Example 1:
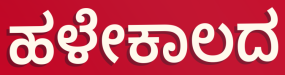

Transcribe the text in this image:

ಹಳೇಕಾಲದ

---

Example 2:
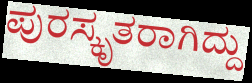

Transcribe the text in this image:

ಪುರಸ್ಕೃತರಾಗಿದ್ದು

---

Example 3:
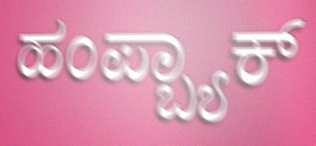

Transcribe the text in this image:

ಹಂಪ್ಬ್ಯಾಕ್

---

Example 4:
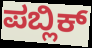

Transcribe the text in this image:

ಪಬ್ಲಿಕ್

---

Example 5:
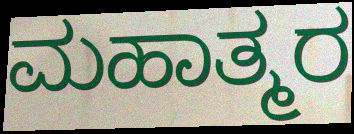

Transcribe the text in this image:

ಮಹಾತ್ಮರ